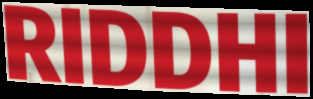
RIDDHI